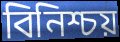
বিনিশ্চয়